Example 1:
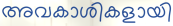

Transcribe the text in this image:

അവകാശികളായി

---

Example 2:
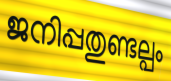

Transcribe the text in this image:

ജനിപ്പതുണ്ടല്പം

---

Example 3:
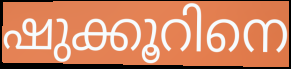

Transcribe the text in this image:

ഷുക്കൂറിനെ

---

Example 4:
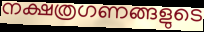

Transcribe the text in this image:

നക്ഷത്രഗണങ്ങളുടെ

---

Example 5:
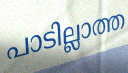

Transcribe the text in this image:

പാടില്ലാത്ത